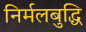
निर्मलबुद्धि